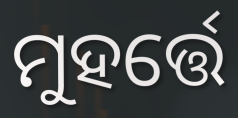
ମୁହର୍ତ୍ତେ